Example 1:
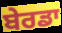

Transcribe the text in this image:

ਬੇਰਡਾ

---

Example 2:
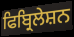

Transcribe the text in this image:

ਫਿਬ੍ਰਿਲੇਸ਼ਨ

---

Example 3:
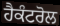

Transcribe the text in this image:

ਹੈਕੰਟਰੋਲ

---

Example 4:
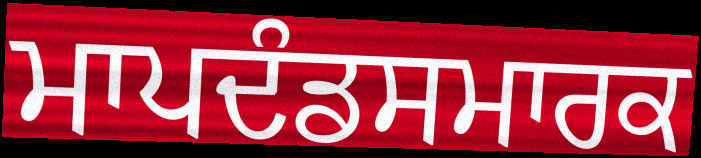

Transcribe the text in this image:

ਮਾਪਦੰਡਸਮਾਰਕ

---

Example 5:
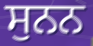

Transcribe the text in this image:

ਸੁਨਨ